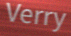
Verry